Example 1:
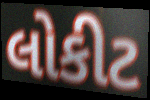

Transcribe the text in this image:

લોકીટ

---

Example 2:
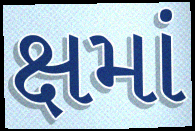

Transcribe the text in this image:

ક્ષમાં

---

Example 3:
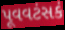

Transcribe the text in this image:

પૂવવટંસકં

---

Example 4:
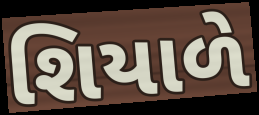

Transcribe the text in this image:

શિયાળે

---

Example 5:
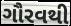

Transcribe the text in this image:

ગૌરવથી